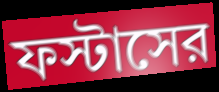
ফস্টাসের